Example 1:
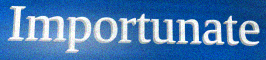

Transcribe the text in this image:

Importunate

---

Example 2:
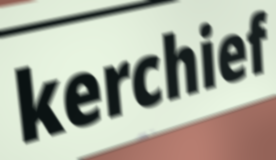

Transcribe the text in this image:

kerchief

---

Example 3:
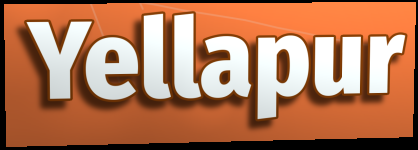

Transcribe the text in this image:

Yellapur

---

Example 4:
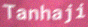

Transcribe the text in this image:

Tanhaji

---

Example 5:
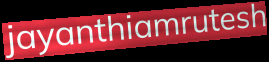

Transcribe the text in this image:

jayanthiamrutesh